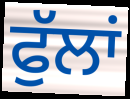
ਫੁੱਲਾਂ